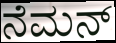
ನೆಮನ್